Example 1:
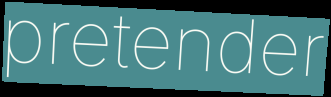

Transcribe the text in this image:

pretender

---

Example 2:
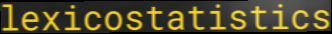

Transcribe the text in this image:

lexicostatistics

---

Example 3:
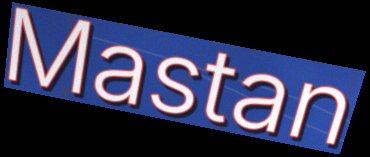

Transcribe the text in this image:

Mastan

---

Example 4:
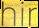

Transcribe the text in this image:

hir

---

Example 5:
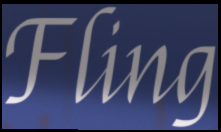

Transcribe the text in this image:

Fling